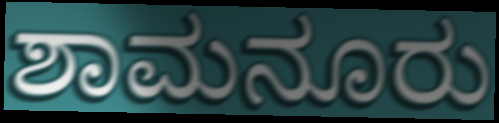
ಶಾಮನೂರು